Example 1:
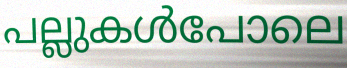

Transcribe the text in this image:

പല്ലുകൾപോലെ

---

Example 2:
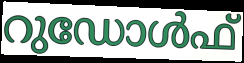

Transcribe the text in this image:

റുഡോൾഫ്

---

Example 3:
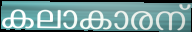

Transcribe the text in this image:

കലാകാരന്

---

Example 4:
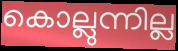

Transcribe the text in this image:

കൊല്ലുന്നില്ല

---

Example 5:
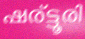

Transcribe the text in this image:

ഷര്ട്ടൂരി